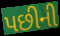
પછીની